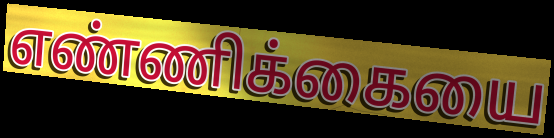
எண்ணிக்கையை